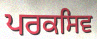
ਪਰਕਸਿਵ